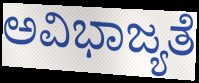
ಅವಿಭಾಜ್ಯತೆ